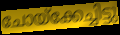
ചോയ്ക്കേച്ചിട്ടു